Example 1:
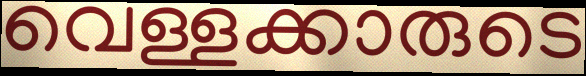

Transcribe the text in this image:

വെള്ളക്കാരുടെ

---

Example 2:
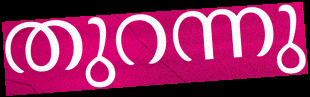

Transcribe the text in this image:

തുറന്നു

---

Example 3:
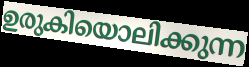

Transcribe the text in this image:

ഉരുകിയൊലിക്കുന്ന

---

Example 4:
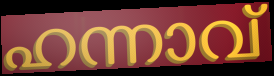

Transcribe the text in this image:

ഹന്നാവ്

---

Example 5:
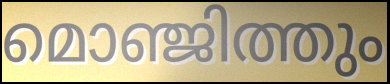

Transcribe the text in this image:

മൊഞ്ജിത്തും